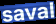
saval